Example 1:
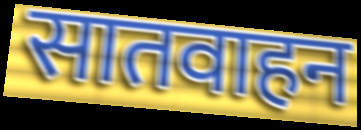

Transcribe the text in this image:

सातवाहन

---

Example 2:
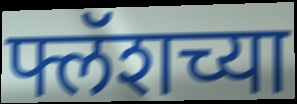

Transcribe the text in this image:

फ्लॅशच्या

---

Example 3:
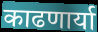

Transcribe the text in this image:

काढणार्या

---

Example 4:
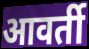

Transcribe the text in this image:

आवर्ती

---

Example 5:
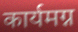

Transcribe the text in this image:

कार्यमग्न